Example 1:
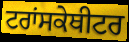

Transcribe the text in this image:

ਟਰਾਂਸਕੇਥੀਟਰ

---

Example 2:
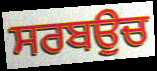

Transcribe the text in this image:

ਸਰਬਉਚ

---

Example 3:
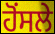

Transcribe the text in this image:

ਹੋਂਸਲੇ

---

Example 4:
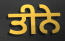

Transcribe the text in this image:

ਤੀਨੇ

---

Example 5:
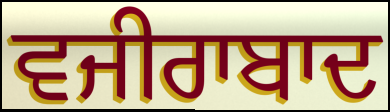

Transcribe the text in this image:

ਵਜੀਰਾਬਾਦ